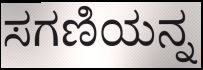
ಸಗಣಿಯನ್ನ